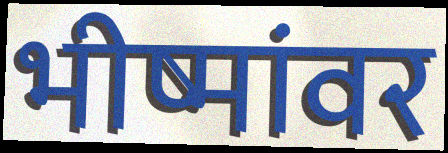
भीष्मांवर